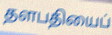
தளபதியைப்